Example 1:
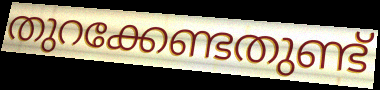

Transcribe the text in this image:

തുറക്കേണ്ടതുണ്ട്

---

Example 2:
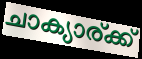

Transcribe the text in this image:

ചാക്യാര്ക്ക്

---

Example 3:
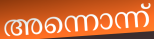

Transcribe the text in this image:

അന്നൊന്ന്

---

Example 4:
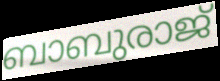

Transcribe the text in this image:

ബാബുരാജ്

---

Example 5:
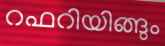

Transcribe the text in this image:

റഫറിയിങ്ങും